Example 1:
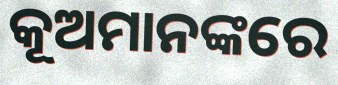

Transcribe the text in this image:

କୂଅମାନଙ୍କରେ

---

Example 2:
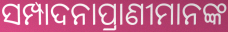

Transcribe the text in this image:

ସମ୍ପାଦନାପ୍ରାଣୀମାନଙ୍କ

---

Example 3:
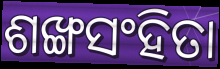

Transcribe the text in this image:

ଶଙ୍ଖସଂହିତା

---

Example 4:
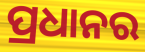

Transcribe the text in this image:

ପ୍ରଧାନର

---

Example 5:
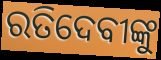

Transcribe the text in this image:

ରତିଦେବୀଙ୍କୁ